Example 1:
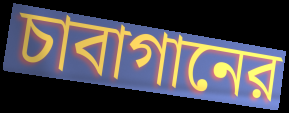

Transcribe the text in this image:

চাবাগানের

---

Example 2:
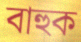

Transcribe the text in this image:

বাহুক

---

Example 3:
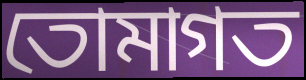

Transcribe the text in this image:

তোমাগত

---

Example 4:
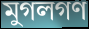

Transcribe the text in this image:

মুগলগণ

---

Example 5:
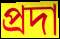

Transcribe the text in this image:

প্রদা